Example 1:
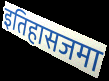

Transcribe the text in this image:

इतिहासजमा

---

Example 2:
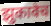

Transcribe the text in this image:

झुकावेच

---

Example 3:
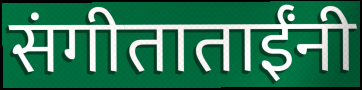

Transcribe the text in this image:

संगीताताईंनी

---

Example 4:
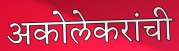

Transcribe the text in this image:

अकोलेकरांची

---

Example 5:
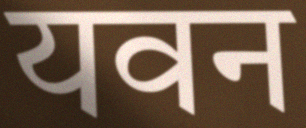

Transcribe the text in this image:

यवन